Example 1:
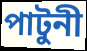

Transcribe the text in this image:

পাটুনী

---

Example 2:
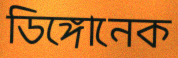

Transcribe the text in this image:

ডিঙ্গোনেক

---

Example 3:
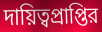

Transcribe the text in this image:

দায়িত্বপ্রাপ্তির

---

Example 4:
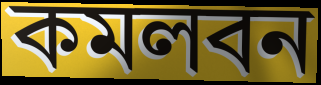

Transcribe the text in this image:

কমলবন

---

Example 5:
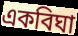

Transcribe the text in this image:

একবিঘা